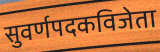
सुवर्णपदकविजेता